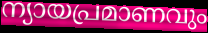
ന്യായപ്രമാണവും